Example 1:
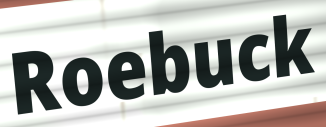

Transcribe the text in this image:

Roebuck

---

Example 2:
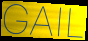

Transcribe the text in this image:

GAIL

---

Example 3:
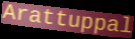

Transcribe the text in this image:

Arattuppal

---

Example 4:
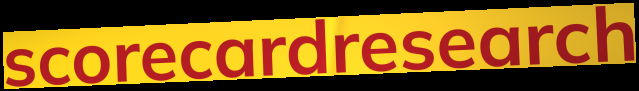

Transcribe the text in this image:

scorecardresearch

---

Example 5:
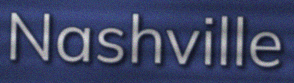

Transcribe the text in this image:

Nashville